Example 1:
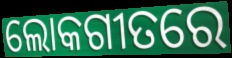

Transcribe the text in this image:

ଲୋକଗୀତରେ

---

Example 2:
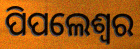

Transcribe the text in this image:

ପିପଲେଶ୍ୱର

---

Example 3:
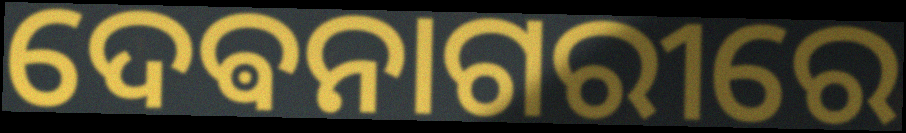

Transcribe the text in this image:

ଦେଵନାଗରୀରେ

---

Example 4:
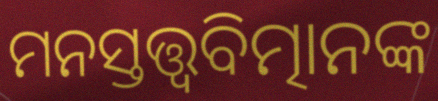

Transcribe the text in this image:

ମନସ୍ତତ୍ତ୍ବବିତ୍ମାନଙ୍କ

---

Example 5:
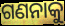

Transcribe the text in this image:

ଗଣନାକୁ